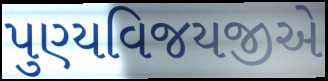
પુણ્યવિજયજીએ